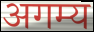
अगम्य